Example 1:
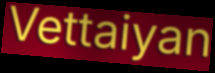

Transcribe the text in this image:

Vettaiyan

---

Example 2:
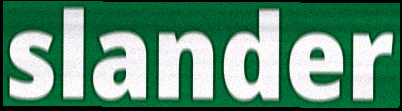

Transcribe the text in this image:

slander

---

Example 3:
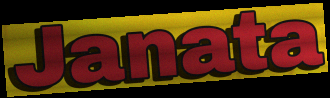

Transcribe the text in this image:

Janata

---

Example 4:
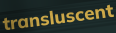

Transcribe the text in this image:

transluscent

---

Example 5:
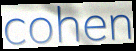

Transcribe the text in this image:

cohen